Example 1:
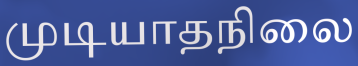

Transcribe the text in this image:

முடியாதநிலை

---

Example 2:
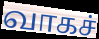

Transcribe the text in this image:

வாகச்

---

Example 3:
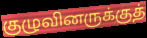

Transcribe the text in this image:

குழுவினருக்குத்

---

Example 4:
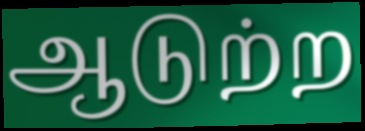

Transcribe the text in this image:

ஆடுற்ற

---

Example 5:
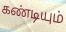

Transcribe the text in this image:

கண்டியும்